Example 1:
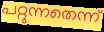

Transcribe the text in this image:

പറ്റുന്നതെന്ന്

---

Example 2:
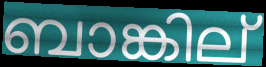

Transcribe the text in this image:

ബാങ്കില്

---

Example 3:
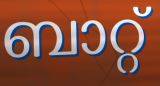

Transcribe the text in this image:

ബാറ്റ്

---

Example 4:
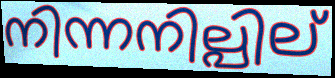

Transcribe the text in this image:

നിന്നനില്പില്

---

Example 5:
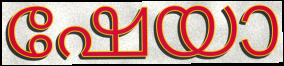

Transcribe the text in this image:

ഷേയാ